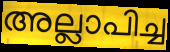
അല്ലാപിച്ച